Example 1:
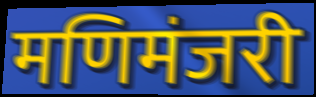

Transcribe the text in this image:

मणिमंजरी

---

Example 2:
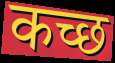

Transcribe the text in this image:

कच्‍छ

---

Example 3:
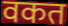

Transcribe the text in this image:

वकत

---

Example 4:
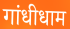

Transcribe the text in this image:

गांधीधाम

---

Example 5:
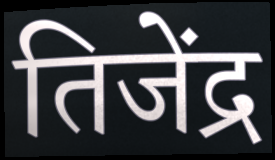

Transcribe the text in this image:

तिजेंद्र